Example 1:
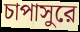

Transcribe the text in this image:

চাপাসুরে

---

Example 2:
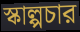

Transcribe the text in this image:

স্কাল্পচার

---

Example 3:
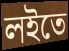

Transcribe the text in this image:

লইতে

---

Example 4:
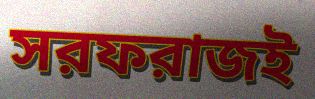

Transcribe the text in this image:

সরফরাজই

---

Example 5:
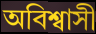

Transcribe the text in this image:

অবিশ্বাসী